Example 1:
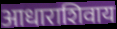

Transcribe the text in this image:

आधाराशिवाय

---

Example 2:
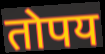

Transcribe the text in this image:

तोपय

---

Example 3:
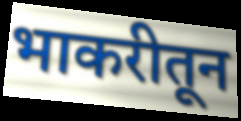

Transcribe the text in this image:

भाकरीतून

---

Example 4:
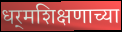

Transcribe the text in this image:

धर्मशिक्षणाच्या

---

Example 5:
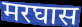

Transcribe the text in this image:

मरघास